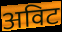
अविट